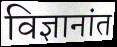
विज्ञानांत